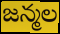
జన్మల